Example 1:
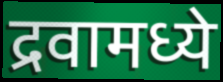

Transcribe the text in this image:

द्रवामध्ये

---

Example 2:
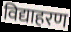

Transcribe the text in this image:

विद्याहरण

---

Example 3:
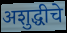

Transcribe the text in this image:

अशुद्धीचे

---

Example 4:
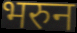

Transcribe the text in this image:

भरुन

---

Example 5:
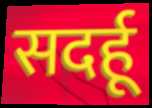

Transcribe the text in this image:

सदर्हू